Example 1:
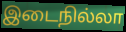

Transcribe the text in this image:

இடைநில்லா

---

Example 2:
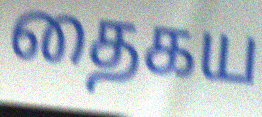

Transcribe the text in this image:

தைகய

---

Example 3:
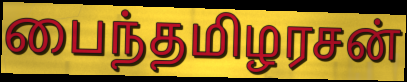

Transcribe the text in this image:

பைந்தமிழரசன்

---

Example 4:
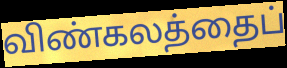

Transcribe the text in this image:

விண்கலத்தைப்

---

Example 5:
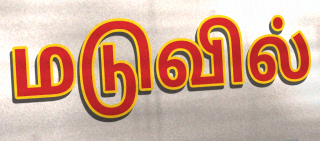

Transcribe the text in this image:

மடுவில்